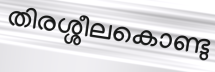
തിരശ്ശീലകൊണ്ടു